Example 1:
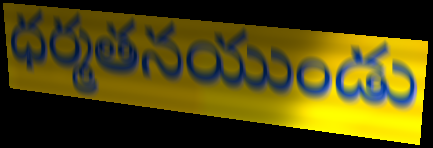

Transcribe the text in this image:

ధర్మతనయుండు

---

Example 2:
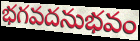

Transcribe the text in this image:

భగవదనుభవం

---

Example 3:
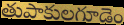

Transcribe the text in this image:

తుపాకులగూడెం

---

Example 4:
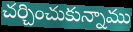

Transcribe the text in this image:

చర్చించుకున్నాము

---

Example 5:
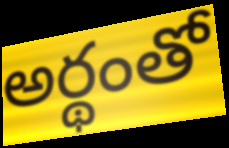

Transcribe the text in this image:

అర్థంతో